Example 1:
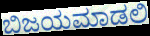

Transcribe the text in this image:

ಬಿಜಯಮಾಡಲಿ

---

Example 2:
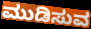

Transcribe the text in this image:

ಮುಡಿಸುವ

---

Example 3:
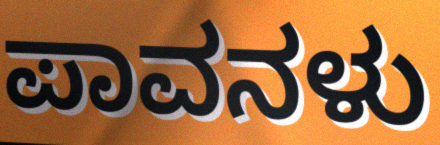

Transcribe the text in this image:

ಪಾವನಳು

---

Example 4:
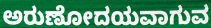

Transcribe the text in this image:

ಅರುಣೋದಯವಾಗುವ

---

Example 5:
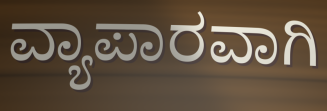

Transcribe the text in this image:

ವ್ಯಾಪಾರವಾಗಿ